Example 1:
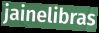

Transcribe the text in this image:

jainelibras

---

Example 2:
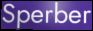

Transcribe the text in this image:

Sperber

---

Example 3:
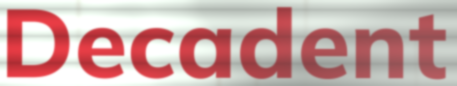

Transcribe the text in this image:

Decadent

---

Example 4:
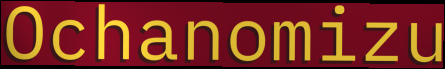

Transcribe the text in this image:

Ochanomizu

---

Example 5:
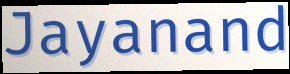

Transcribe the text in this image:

Jayanand